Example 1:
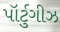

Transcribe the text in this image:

પૉર્ટુગીઝ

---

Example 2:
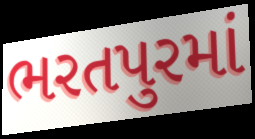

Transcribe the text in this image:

ભરતપુરમાં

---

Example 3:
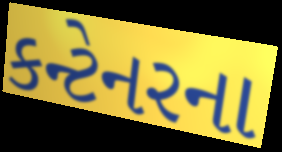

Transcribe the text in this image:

કન્ટેનરના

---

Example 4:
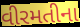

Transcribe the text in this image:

વીરમતીના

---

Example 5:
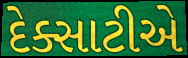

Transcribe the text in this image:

દેક્સાટીએ